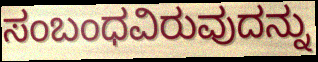
ಸಂಬಂಧವಿರುವುದನ್ನು